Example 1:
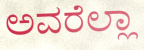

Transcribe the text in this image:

ಅವರೆಲ್ಲಾ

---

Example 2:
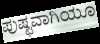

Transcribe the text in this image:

ಪುಷ್ಟವಾಗಿಯೂ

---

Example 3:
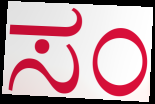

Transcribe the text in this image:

ಸಂ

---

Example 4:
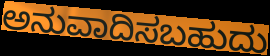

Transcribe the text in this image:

ಅನುವಾದಿಸಬಹುದು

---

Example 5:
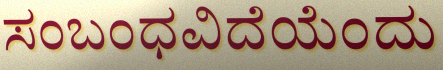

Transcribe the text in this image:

ಸಂಬಂಧವಿದೆಯೆಂದು